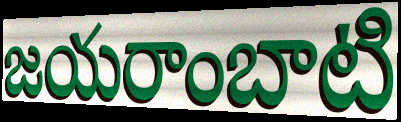
జయరాంబాటి